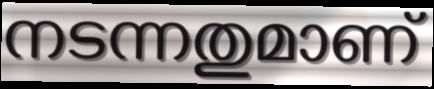
നടന്നതുമാണ്